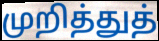
முறித்துத்